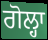
ਗੋਲ੍ਹਾ